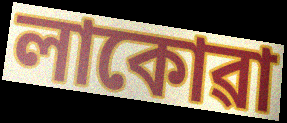
লাকোৱা